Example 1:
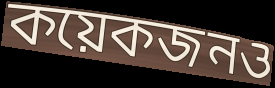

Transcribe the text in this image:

কয়েকজনও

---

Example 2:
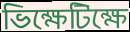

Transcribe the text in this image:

ভিক্ষেটিক্ষে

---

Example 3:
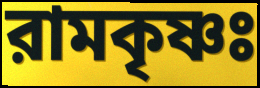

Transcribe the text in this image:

রামকৃষ্ণঃ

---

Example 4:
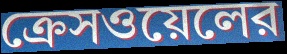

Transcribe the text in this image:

ক্রেসওয়েলের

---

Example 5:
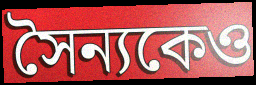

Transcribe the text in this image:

সৈন্যকেও